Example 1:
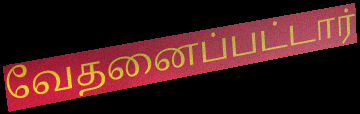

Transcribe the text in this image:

வேதனைப்பட்டார்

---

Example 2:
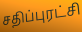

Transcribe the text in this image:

சதிப்புரட்சி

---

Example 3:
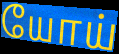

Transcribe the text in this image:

யோய்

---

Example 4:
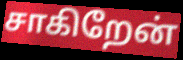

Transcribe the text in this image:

சாகிறேன்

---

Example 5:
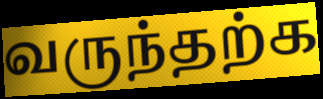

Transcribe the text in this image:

வருந்தற்க